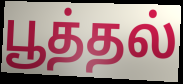
பூத்தல்